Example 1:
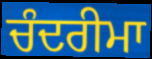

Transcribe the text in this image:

ਚੰਦਰੀਮਾ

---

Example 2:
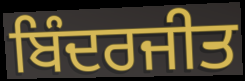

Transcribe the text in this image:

ਬਿੰਦਰਜੀਤ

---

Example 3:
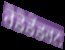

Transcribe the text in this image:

ਰੋਡੋਡੇਂਡਰਨ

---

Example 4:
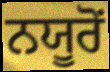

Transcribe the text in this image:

ਨਯੂਰੋਂ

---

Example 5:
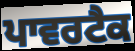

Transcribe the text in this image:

ਪਾਵਰਟੈਕ